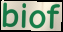
biof